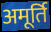
अमूर्ति